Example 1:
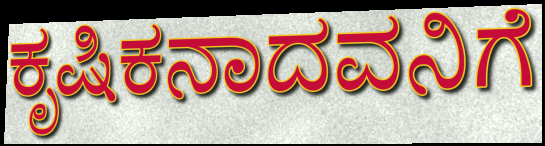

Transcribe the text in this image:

ಕೃಷಿಕನಾದವನಿಗೆ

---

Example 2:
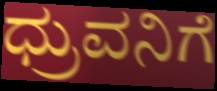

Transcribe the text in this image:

ಧ್ರುವನಿಗೆ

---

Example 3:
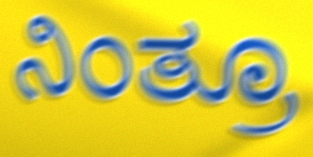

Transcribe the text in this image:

ನಿಂತ್ರೂ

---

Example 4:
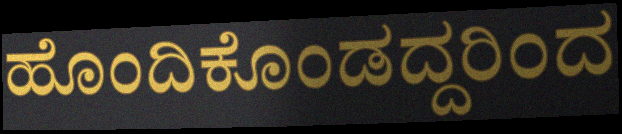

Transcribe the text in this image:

ಹೊಂದಿಕೊಂಡದ್ದರಿಂದ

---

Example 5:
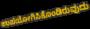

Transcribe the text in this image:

ಉಪಯೋಗಿಸಿಕೊಂಡಿರುವುದು